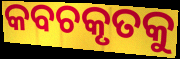
କବଚକୃତକୁ